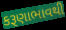
કરૂણાભાવથી